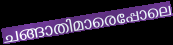
ചങ്ങാതിമാരെപ്പോലെ